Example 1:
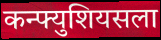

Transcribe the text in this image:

कन्फ्युशियसला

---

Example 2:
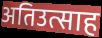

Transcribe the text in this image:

अतिउत्साह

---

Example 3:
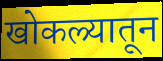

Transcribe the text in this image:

खोकल्यातून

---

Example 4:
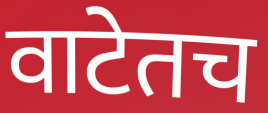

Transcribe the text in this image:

वाटेतच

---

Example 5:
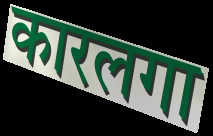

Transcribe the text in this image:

कारलगा